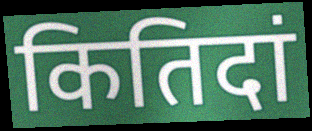
कितिदां